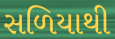
સળિયાથી